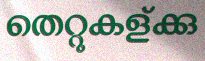
തെറ്റുകള്ക്കു